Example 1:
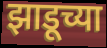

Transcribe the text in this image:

झाडूच्या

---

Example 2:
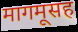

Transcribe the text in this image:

मागमूसह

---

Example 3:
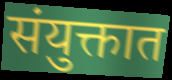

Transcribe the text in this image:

संयुक्तात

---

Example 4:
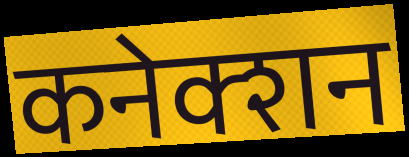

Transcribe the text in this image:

कनेक्शन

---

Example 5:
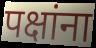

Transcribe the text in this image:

पक्षांना